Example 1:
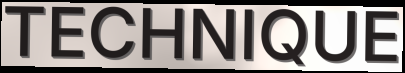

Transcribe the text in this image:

TECHNIQUE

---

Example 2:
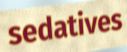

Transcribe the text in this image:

sedatives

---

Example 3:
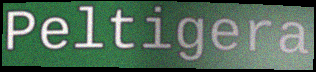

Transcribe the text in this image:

Peltigera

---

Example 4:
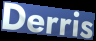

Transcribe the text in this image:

Derris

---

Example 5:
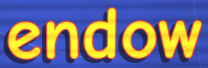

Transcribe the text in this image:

endow